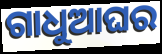
ଗାଧୁଆଘର